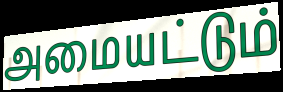
அமையட்டும்